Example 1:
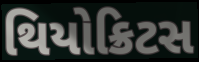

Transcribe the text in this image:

થિયોક્રિટસ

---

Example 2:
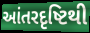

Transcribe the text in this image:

આંતરદૃષ્ટિથી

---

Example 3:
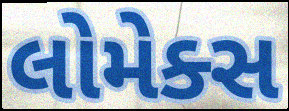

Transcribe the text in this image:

લોમેક્સ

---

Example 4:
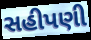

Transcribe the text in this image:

સહીપણી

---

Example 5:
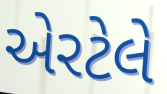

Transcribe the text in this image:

એરટેલે